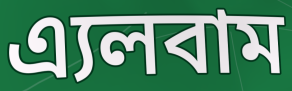
এ্যলবাম